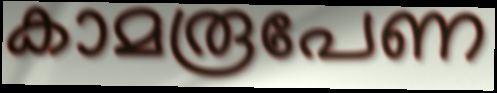
കാമരൂപേണ